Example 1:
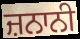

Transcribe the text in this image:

ਜ਼ਨਾਨੀ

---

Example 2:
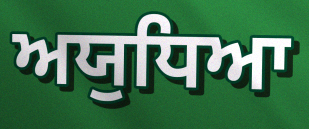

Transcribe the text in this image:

ਅਯੁਧਿਆ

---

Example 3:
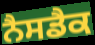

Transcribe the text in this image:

ਨੈਸਡੈਕ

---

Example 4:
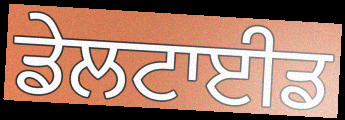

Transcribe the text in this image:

ਡੇਲਟਾਈਡ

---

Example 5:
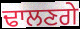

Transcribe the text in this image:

ਢਾਲਣਗੇ